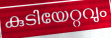
കുടിയേറ്റവും